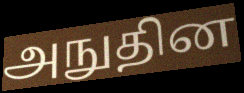
அநுதின